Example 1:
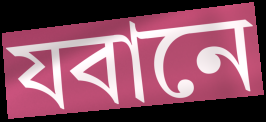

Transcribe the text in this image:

যবানে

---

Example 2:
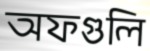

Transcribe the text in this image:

অফগুলি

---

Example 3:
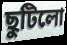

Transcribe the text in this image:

ছুটিলো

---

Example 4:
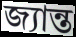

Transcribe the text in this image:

জ্যান্ত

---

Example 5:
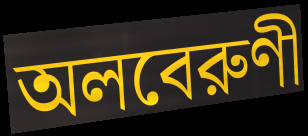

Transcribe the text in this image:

অলবেরুণী